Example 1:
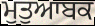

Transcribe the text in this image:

ਮੁਤੁਆਬਕ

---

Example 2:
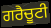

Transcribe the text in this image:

ਗਰੈਚੂਟੀ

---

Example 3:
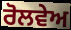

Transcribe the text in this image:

ਰੋਲਵੇਅ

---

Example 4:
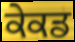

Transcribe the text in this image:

ਕੇਕਡ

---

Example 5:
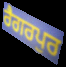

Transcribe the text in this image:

ਰੈਗਰਪੁਰ